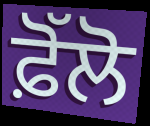
ਫ਼ੋੱਲੋ